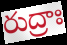
రుద్రాః